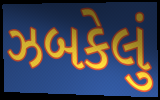
ઝબકેલું